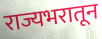
राज्यभरातून